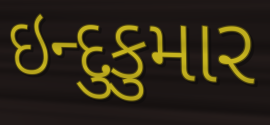
ઇન્દુકુમાર